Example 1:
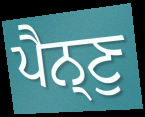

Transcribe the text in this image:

ਪੈਨ੍ਣੁ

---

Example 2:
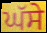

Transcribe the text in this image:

ਘੱਸੇ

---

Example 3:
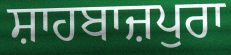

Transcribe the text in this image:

ਸ਼ਾਹਬਾਜ਼ਪੁਰਾ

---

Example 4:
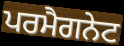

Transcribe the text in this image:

ਪਰਮੈਗਨੇਟ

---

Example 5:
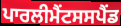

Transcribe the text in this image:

ਪਾਰਲੀਮੈਂਟਸਸਪੈਂਡ